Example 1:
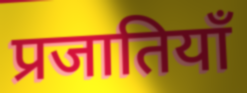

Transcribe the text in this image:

प्रजातियाँ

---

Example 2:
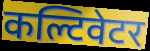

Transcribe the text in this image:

कल्टिवेटर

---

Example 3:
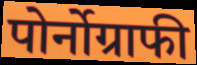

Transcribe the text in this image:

पोर्नोग्राफी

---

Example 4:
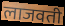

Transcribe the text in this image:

लाजवती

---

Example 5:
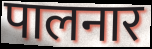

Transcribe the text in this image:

पालनार